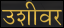
उशीवर